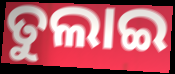
ତୁଲାଇ